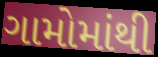
ગામોમાંથી